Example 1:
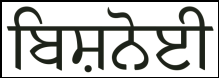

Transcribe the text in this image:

ਬਿਸ਼ਨੋਈ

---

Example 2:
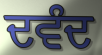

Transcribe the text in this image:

ਦਵੰਦ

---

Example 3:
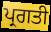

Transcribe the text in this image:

ਪ੍ਰਗਤੀ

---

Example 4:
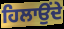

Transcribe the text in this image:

ਹਿਲਾਉਂਦੇ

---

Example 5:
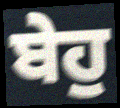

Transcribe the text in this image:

ਬੇਹੁ